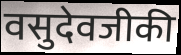
वसुदेवजीकी